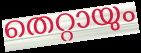
തെറ്റായും